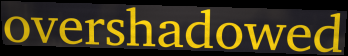
overshadowed